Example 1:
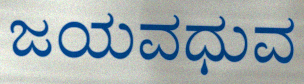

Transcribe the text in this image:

ಜಯವಧುವ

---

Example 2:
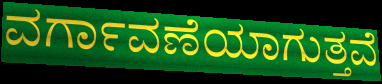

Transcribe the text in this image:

ವರ್ಗಾವಣೆಯಾಗುತ್ತವೆ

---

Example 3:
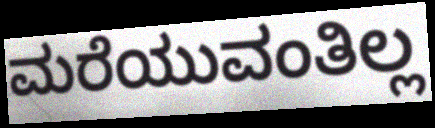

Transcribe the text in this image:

ಮರೆಯುವಂತಿಲ್ಲ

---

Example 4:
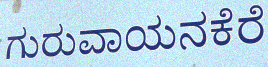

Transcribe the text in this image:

ಗುರುವಾಯನಕೆರೆ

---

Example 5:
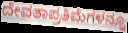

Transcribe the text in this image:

ದೇವತಾಪ್ರತಿಮೆಗಳನ್ನೂ